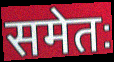
समेतः